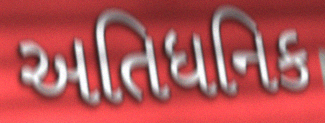
અતિધનિક